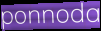
ponnoda